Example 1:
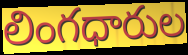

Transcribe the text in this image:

లింగధారుల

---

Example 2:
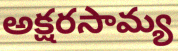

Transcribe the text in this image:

అక్షరసామ్య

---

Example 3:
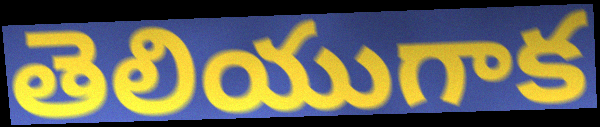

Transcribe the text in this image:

తెలియుగాక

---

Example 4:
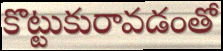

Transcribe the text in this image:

కొట్టుకురావడంతో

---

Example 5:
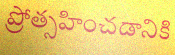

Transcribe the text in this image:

ప్రోత్సహించడానికి